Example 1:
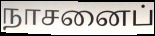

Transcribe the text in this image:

நாசனைப்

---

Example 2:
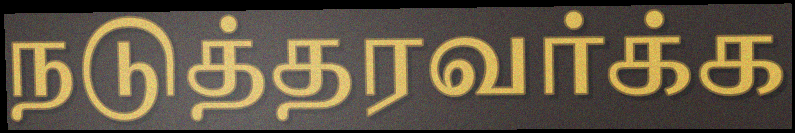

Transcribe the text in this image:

நடுத்தரவர்க்க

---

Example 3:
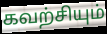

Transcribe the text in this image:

கவற்சியும்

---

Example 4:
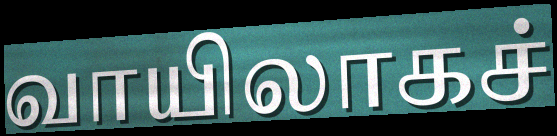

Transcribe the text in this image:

வாயிலாகச்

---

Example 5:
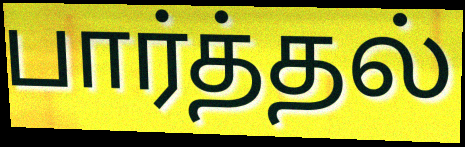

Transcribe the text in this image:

பார்த்தல்